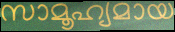
സാമൂഹ്യമായ